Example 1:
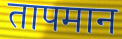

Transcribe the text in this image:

तापमान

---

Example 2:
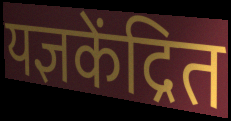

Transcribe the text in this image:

यज्ञकेंद्रित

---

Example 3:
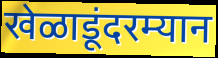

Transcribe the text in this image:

खेळाडूंदरम्यान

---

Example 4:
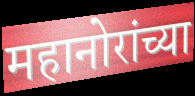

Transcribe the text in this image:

महानोरांच्या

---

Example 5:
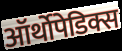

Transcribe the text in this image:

ऑर्थोपेडिक्स